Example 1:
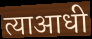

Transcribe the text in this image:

त्याआधी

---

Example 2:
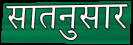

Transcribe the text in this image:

सातनुसार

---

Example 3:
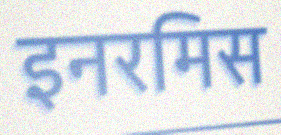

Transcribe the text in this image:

इनरमिस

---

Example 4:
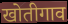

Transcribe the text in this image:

खोतीगाव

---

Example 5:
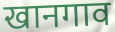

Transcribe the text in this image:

खानगाव